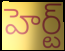
హెర్ట్